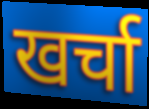
खर्चा